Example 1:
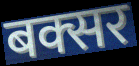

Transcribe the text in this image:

बक्‍सर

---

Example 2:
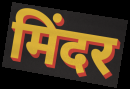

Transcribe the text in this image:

मिंदर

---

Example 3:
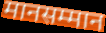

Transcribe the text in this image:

मानसम्मान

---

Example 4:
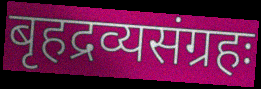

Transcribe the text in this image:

बृहद्रव्यसंग्रहः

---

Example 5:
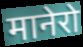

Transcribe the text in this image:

मानेरो